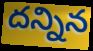
దన్నిన